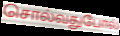
சொல்வதுபோல்